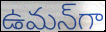
ఉమన్‌గా